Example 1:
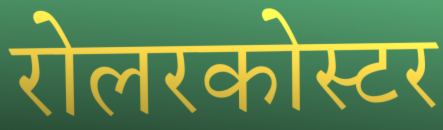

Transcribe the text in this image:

रोलरकोस्टर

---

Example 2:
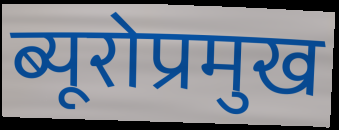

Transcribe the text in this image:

ब्यूरोप्रमुख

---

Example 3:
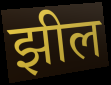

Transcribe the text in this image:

झील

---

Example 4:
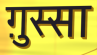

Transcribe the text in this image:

ग़ुस्सा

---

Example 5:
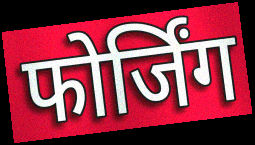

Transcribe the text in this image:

फोर्जिंग